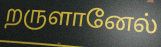
றருளானேல்